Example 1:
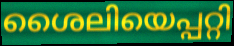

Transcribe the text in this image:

ശൈലിയെപ്പറ്റി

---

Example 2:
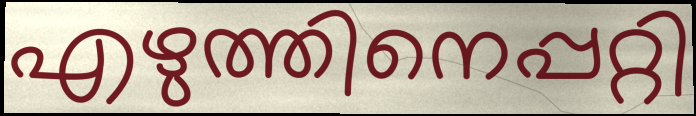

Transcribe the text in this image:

എഴുത്തിനെപ്പറ്റി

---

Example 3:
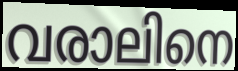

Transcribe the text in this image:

വരാലിനെ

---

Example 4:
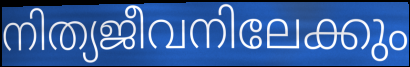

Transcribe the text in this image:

നിത്യജീവനിലേക്കും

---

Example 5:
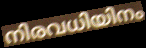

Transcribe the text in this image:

നിരവധിയിനം